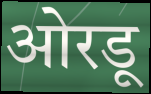
ओरडू